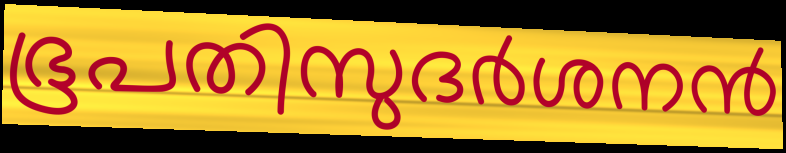
ഭൂപതിസുദർശനൻ